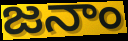
జనాం